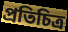
প্রতিচিত্র